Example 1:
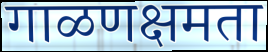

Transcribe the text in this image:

गाळणक्षमता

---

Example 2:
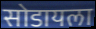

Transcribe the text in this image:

सोडायला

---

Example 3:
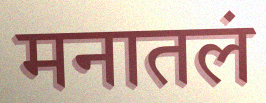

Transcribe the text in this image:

मनातलं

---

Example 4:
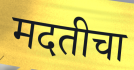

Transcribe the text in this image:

मदतीचा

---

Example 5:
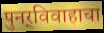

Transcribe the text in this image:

पुनर्विवाहाचा